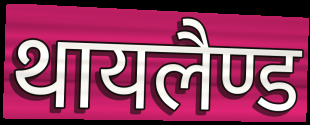
थायलैण्ड